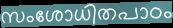
സംശോധിതപാഠം